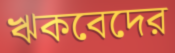
ঋকবেদের